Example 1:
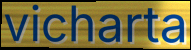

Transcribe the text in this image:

vicharta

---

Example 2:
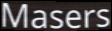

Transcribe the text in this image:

Masers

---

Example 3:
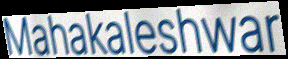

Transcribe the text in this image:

Mahakaleshwar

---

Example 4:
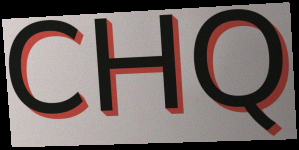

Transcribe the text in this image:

CHQ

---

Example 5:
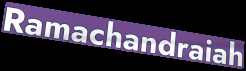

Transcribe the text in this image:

Ramachandraiah